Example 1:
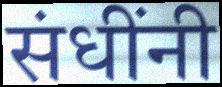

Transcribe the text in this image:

संधींनी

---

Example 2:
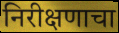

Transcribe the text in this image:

निरीक्षणाचा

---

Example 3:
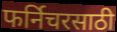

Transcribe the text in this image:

फर्निचरसाठी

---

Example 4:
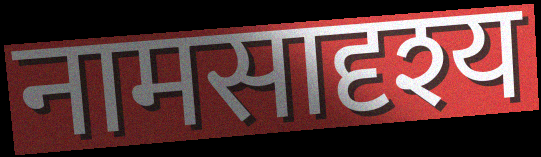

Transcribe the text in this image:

नामसादृश्य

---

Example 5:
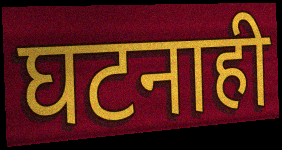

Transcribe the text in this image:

घटनाही